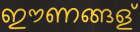
ഈണങ്ങള്